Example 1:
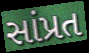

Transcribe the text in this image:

સાંપ્રત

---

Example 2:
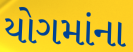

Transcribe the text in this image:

યોગમાંના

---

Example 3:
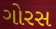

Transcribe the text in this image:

ગોરસ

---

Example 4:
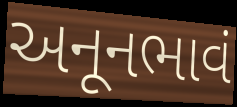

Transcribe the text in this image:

અનૂનભાવં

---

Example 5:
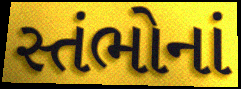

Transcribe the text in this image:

સ્તંભોનાં